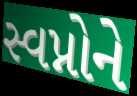
સ્વપ્નોને